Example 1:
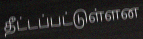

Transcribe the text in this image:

தீட்டப்பட்டுள்ளன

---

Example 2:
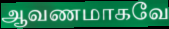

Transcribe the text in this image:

ஆவணமாகவே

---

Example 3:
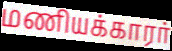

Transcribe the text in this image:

மணியக்காரர்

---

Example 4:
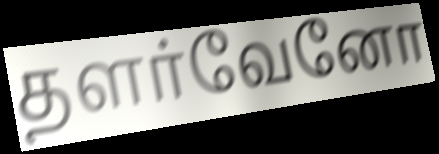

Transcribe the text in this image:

தளர்வேனோ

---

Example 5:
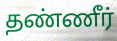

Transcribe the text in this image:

தண்ணீர்